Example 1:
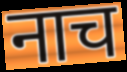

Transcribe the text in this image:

नाच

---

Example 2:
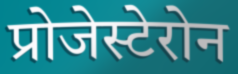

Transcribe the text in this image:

प्रोजेस्टेरोन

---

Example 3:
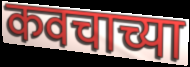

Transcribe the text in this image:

कवचाच्या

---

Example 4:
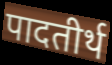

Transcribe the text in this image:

पादतीर्थ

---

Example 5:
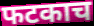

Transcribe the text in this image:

फटकाच